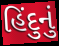
હિંદુનું